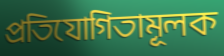
প্ৰতিযোগিতামূলক